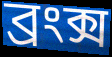
ব্রংক্স